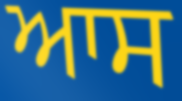
ਆਸ